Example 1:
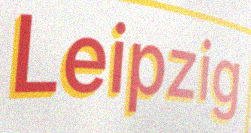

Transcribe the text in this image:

Leipzig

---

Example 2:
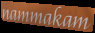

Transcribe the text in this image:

nammakam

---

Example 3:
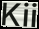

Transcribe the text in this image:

Kii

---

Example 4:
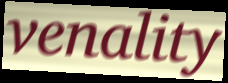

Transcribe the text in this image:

venality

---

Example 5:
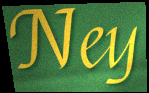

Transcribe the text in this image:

Ney